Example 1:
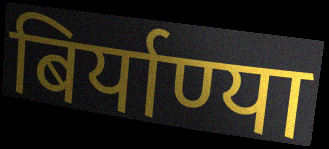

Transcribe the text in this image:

बिर्याण्या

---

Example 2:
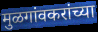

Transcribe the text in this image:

मुळगांवकरांच्या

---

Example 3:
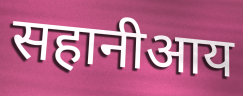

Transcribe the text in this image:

सहानीआय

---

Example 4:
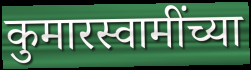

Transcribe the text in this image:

कुमारस्वामींच्या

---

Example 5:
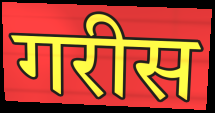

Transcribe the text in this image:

गरीस